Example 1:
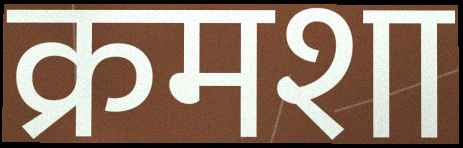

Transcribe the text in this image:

क्रमशा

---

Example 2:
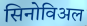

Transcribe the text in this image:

सिनोविअल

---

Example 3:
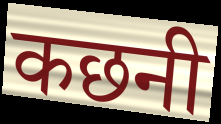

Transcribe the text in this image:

कछनी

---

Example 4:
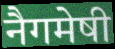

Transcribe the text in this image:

नैगमेषी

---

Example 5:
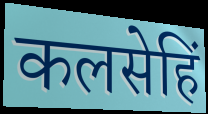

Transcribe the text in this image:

कलसेहिं